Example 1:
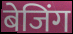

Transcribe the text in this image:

बेजिंग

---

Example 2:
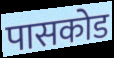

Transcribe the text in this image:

पासकोड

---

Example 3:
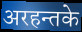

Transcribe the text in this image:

अरहन्तके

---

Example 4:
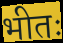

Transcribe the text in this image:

भीतः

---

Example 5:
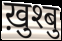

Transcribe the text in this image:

ख़ुश्बु